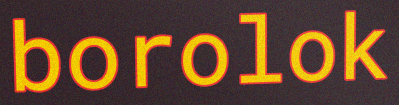
borolok